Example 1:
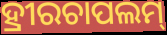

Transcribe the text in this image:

ହ୍ରୀରଚାପଲମ୍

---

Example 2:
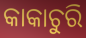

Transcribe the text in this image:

କାକାଚୁରି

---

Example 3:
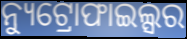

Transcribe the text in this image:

ନ୍ୟୁଟ୍ରୋଫାଇଲ୍ସର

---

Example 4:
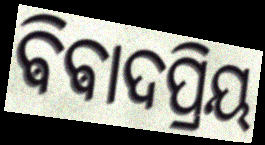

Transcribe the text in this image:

ଵିଵାଦପ୍ରିୟ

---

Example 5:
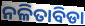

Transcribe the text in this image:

ନଳିତାବିଡା